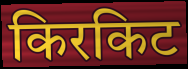
किरकिट